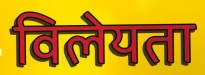
विलेयता